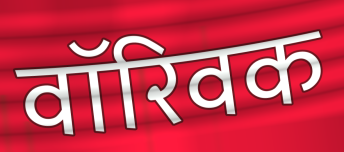
वॉरिवक